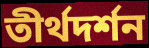
তীর্থদর্শন